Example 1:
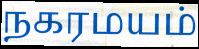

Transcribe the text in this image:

நகரமயம்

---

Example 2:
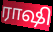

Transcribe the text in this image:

ராஷி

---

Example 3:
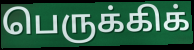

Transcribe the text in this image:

பெருக்கிக்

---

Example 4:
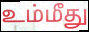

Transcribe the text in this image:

உம்மீது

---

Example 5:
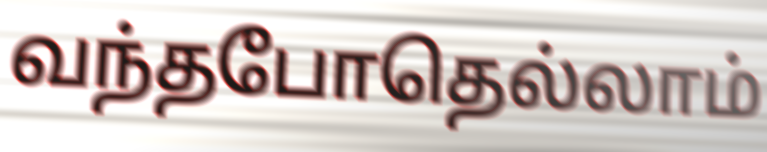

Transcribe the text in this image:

வந்தபோதெல்லாம்